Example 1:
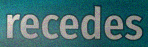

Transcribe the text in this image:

recedes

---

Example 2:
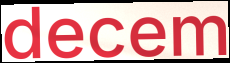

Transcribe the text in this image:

decem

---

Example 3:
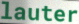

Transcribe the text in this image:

lauter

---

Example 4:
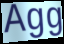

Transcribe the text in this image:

Agg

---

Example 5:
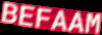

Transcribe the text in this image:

BEFAAM